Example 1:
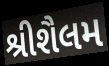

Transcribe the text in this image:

શ્રીશૈલમ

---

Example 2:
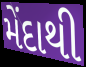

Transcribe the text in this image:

મેંદાથી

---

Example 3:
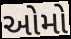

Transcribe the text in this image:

ઓમો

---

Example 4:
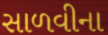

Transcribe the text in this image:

સાળવીના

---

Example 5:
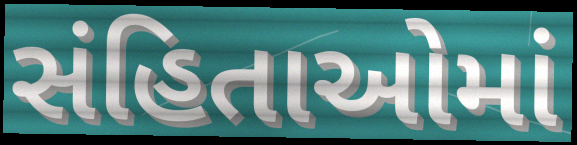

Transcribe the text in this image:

સંહિતાઓમાં